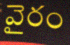
వైరం